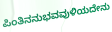
ಪಿಂತಿನನುಭವವುಳಿಯದೇನು